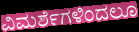
ವಿಮರ್ಶೆಗಳಿಂದಲೂ